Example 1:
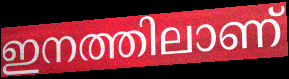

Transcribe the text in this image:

ഇനത്തിലാണ്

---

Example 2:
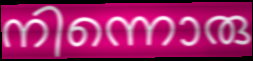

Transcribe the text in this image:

നിന്നൊരു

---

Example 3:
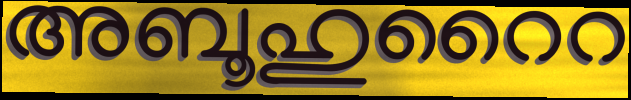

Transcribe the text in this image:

അബൂഹുറൈറ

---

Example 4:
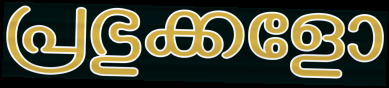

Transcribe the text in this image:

പ്രഭുക്കളോ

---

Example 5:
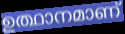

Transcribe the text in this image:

ഉത്ഥാനമാണ്